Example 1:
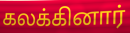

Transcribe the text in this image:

கலக்கினார்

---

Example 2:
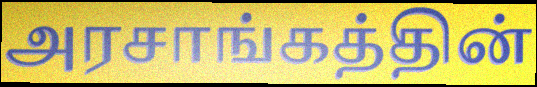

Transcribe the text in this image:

அரசாங்கத்தின்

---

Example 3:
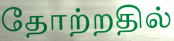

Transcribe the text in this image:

தோற்றதில்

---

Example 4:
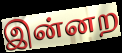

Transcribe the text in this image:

இன்னற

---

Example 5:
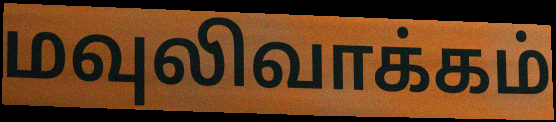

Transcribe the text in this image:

மவுலிவாக்கம்